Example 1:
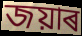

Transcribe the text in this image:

জয়াৰ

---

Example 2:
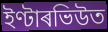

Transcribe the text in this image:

ইণ্টাৰভিউত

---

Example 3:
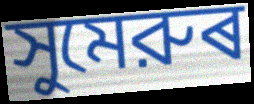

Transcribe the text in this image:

সুমেৰুৰ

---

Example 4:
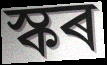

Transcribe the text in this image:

স্কৰ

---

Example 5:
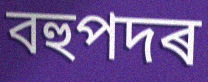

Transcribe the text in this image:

বহুপদৰ